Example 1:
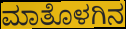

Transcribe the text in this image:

ಮಾತೊಳಗಿನ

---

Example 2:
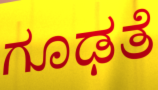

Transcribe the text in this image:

ಗೂಢತೆ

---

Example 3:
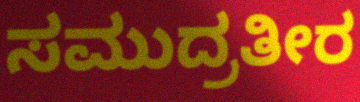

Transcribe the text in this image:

ಸಮುದ್ರತೀರ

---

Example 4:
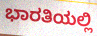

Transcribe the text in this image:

ಭಾರತಿಯಲ್ಲಿ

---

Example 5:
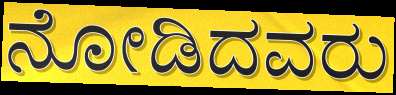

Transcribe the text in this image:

ನೋಡಿದವರು